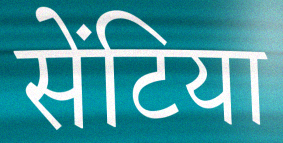
सेंटिया